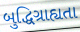
બુદ્ધિગ્રાહ્યતા